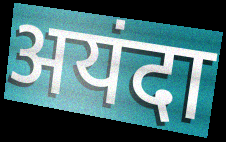
अयंदा